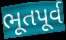
ભૂતપૂર્વ